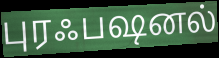
புரஃபஷனல்